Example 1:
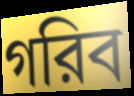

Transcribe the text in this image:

গরিব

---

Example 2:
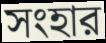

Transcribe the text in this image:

সংহার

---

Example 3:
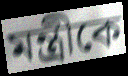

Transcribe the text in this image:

মন্ত্রীকে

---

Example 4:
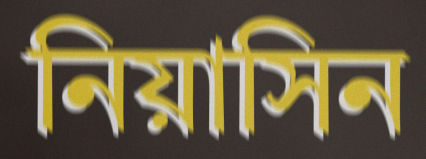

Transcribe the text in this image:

নিয়াসিন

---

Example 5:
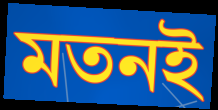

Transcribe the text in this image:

মতনই